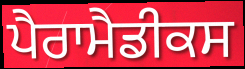
ਪੈਰਾਮੈਡੀਕਸ